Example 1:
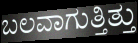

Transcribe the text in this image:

ಬಲವಾಗುತ್ತಿತ್ತು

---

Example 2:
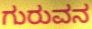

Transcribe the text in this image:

ಗುರುವನ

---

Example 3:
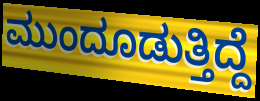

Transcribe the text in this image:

ಮುಂದೂಡುತ್ತಿದ್ದೆ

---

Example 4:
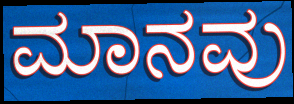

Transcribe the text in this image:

ಮಾನವು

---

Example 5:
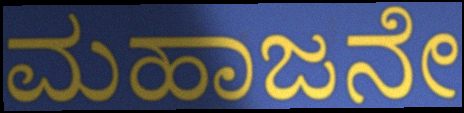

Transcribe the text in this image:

ಮಹಾಜನೇ